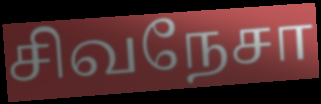
சிவநேசா